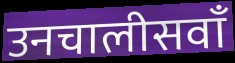
उनचालीसवाँ